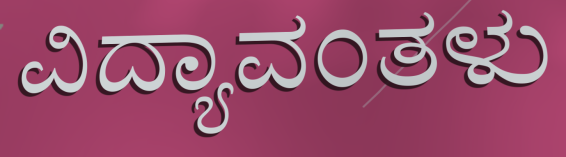
ವಿದ್ಯಾವಂತಳು